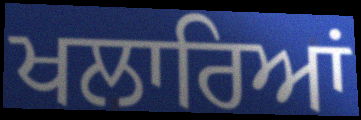
ਖਲਾਰਿਆਂ